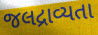
જલદ્રાવ્યતા